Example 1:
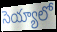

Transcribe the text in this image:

సెయ్యాలో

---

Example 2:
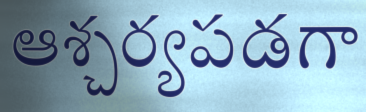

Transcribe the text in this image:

ఆశ్చర్యపడగా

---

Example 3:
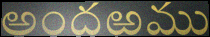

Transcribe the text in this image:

అందఱము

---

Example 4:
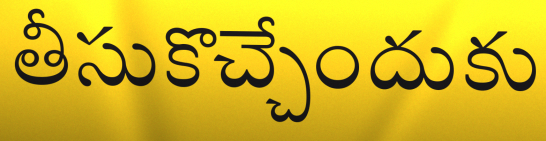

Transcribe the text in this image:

తీసుకొచ్చేందుకు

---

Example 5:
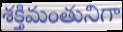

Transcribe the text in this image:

శక్తిమంతునిగా